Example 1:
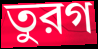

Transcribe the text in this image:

তুরগ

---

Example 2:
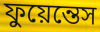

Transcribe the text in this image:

ফুয়েন্তেস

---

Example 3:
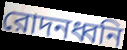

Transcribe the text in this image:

রোদনধ্বনি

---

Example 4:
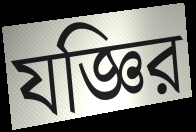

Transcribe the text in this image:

যজ্ঞির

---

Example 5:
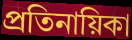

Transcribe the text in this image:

প্রতিনায়িকা